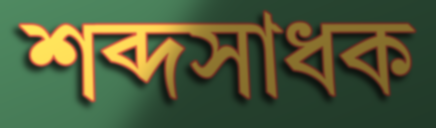
শব্দসাধক